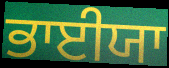
ਭਾਈਯਾ